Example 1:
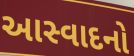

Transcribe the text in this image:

આસ્વાદનો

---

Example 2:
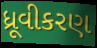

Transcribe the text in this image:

ધ્રૂવીકરણ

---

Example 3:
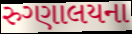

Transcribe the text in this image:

રુગ્ણાલયના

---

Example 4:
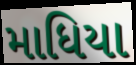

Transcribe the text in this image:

માધિયા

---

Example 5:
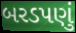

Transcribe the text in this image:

બરડપણું